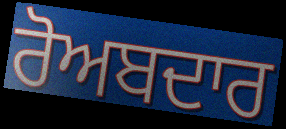
ਰੋਅਬਦਾਰ